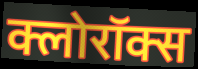
क्लोरॉक्स